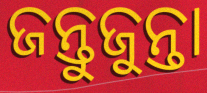
ଜନ୍ତୁଜୁନ୍ତା